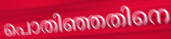
പൊതിഞ്ഞതിനെ